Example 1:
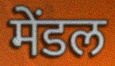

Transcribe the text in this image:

मेंडल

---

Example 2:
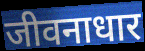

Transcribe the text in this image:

जीवनाधार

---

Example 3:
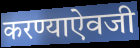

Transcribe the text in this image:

करण्याऐवजी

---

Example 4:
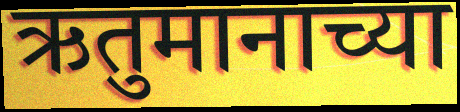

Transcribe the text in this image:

ऋतुमानाच्या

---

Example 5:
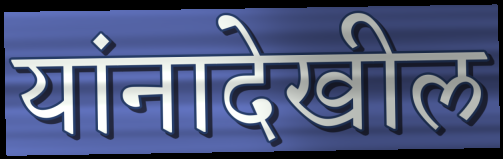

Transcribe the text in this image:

यांनादेखील